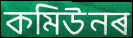
কমিউনৰ